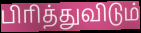
பிரித்துவிடும்